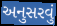
અનુસરવું